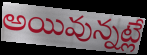
అయివున్నట్లే